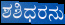
ಶಶಿಧರನು